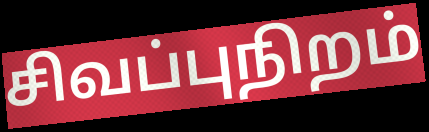
சிவப்புநிறம்